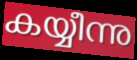
കയ്യീന്നു